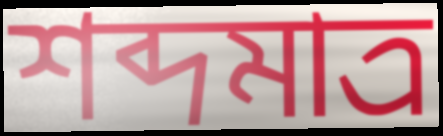
শব্দমাত্র